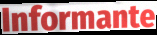
Informante